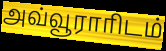
அவ்வூராரிடம்